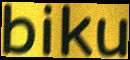
biku